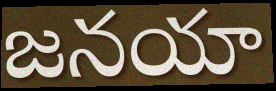
జనయా